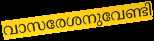
വാസരേശനുവേണ്ടി